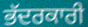
ਭੱਦਰਕਾਰੀ